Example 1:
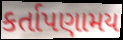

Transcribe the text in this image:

કર્તાપણામય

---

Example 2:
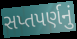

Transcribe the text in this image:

સપ્તપર્ણનું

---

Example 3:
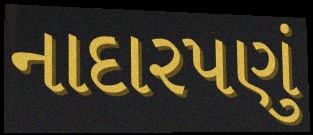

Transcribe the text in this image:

નાદારપણું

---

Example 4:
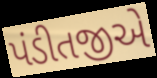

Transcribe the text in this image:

પંડીતજીએ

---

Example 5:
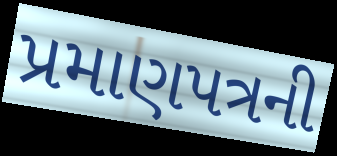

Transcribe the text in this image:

પ્રમાણપત્રની